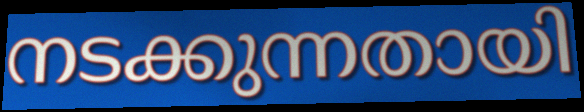
നടക്കുന്നതായി